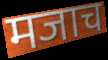
मजाच